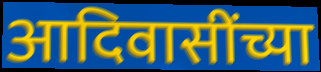
आदिवासींच्या